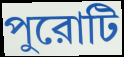
পুরোটি